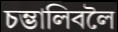
চম্ভালিবলৈ